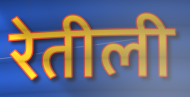
रेतीली